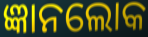
ଜ୍ଞାନଲୋକ